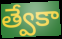
త్వేకా